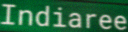
Indiaree